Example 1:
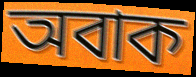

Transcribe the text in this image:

অবাক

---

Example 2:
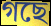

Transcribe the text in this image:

গছে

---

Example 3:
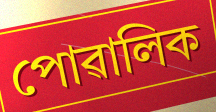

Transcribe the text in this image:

পোৱালিক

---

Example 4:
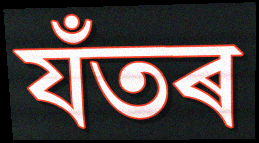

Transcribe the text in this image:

যঁতৰ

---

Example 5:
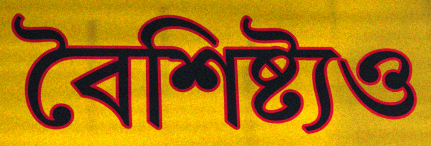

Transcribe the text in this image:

বৈশিষ্ট্যও